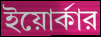
ইয়োর্কার